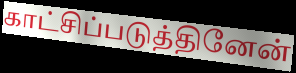
காட்சிப்படுத்தினேன்